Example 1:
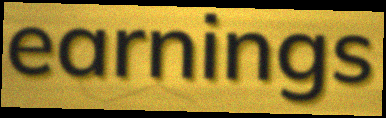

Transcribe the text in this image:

earnings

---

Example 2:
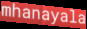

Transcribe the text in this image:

mhanayala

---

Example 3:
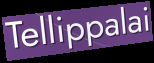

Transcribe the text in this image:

Tellippalai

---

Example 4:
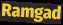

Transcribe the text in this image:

Ramgad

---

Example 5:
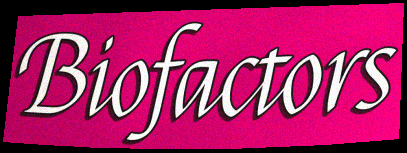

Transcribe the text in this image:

Biofactors